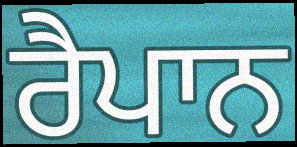
ਰੈਪਾਨ